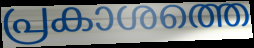
പ്രകാശത്തെ